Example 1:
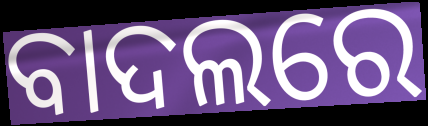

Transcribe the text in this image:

ବାଦଲରେ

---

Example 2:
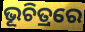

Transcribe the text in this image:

ଭୂଚିତ୍ରରେ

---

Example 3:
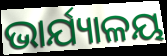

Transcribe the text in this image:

ଭାର୍ଯ୍ୟାଳୟ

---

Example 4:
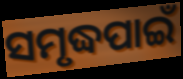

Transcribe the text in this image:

ସମୃଦ୍ଧପାଇଁ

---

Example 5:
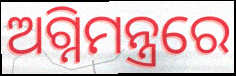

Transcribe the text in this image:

ଅଗ୍ନିମନ୍ତ୍ରରେ